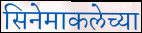
सिनेमाकलेच्या